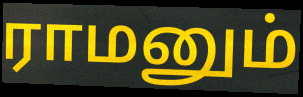
ராமனும்